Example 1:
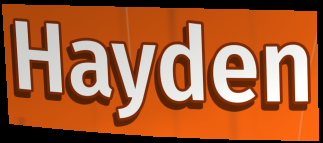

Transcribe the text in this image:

Hayden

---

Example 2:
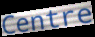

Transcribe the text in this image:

Centre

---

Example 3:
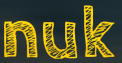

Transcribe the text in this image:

nuk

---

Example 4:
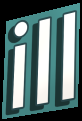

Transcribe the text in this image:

ill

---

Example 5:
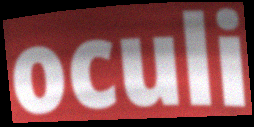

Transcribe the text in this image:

oculi